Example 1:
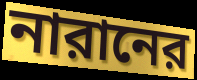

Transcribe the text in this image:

নারানের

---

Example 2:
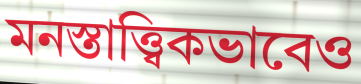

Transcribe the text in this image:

মনস্তাত্ত্বিকভাবেও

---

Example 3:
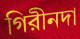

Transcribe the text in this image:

গিরীনদা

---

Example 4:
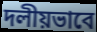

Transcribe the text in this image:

দলীয়ভাবে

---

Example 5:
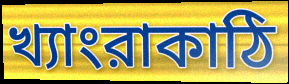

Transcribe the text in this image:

খ্যাংরাকাঠি